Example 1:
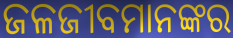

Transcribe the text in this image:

ଜଳଜୀବମାନଙ୍କର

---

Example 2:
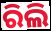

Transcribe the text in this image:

ରିଲି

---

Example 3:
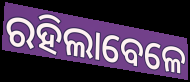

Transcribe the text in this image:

ରହିଲାବେଳେ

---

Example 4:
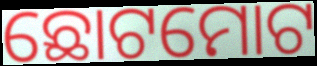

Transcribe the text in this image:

ଛୋଟମୋଟ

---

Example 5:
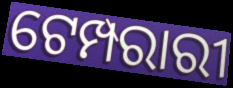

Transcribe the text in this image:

ଟେମ୍ପରାରୀ